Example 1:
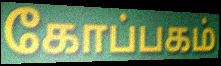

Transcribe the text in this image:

கோப்பகம்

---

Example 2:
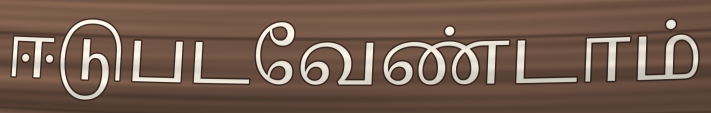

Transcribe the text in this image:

ஈடுபடவேண்டாம்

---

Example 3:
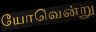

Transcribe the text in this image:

யோவென்று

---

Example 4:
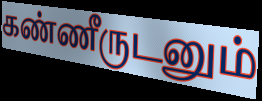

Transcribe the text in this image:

கண்ணீருடனும்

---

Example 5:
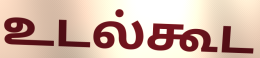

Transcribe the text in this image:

உடல்கூட